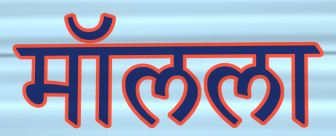
मॉलला